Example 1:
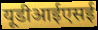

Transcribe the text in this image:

यूडीआईएसई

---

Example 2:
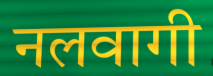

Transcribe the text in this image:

नलवागी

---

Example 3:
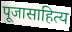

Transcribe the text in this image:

पूजासाहित्य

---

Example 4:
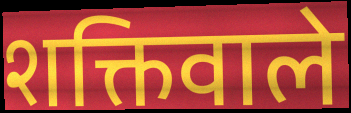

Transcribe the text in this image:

शक्तिवाले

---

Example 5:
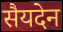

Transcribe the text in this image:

सैयदेन